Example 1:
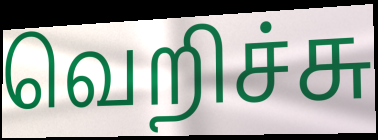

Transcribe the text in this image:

வெறிச்சு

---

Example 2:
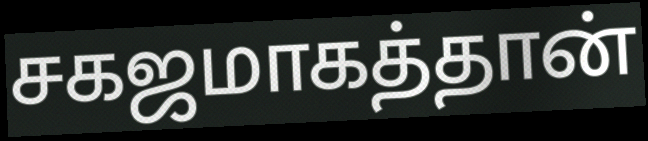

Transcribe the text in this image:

சகஜமாகத்தான்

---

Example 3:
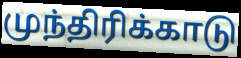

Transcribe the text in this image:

முந்திரிக்காடு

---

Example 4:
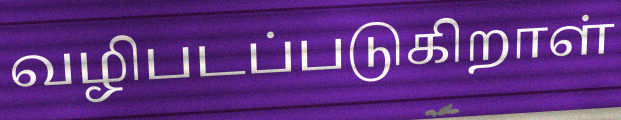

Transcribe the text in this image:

வழிபடப்படுகிறாள்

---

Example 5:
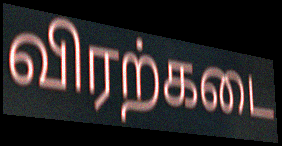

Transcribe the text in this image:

விரற்கடை